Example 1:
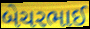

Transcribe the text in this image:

બેચરભાઈ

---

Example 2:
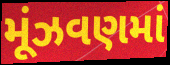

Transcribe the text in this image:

મૂંઝવણમાં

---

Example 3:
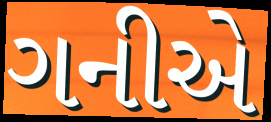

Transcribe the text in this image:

ગનીએ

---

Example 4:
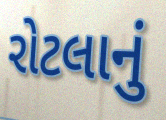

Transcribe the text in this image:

રોટલાનું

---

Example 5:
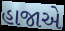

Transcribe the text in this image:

હાજાએ